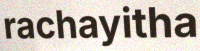
rachayitha